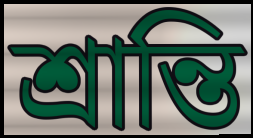
শ্রান্তি